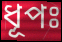
ধূপঃ